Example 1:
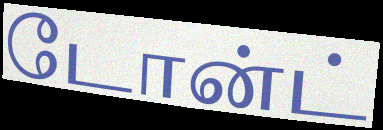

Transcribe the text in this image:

டோன்ட்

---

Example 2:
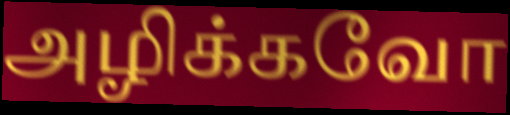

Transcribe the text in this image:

அழிக்கவோ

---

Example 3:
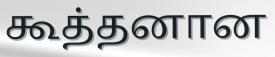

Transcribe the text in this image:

கூத்தனான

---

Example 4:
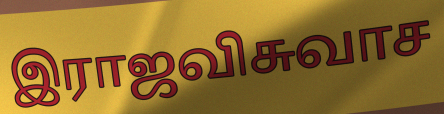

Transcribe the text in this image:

இராஜவிசுவாச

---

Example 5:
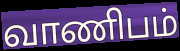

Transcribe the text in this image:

வாணிபம்